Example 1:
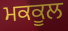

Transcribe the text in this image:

ਮਕਕੂਲ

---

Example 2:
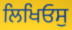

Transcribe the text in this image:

ਲਿਖਿਓਸੁ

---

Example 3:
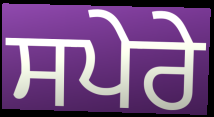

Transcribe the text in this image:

ਸਪੇਰੇ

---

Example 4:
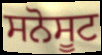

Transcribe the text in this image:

ਸਨੋਸੂਟ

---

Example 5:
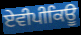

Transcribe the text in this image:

ਏਵੀਪੀਕਿਊ